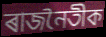
ৰাজনৈতীক